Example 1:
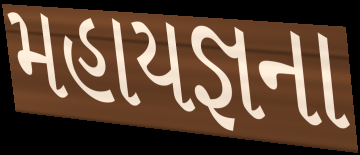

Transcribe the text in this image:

મહાયજ્ઞના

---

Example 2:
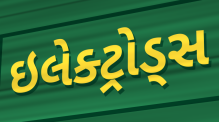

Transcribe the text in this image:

ઇલેક્ટ્રોડ્સ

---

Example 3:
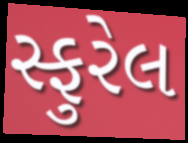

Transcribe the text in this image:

સ્ફુરેલ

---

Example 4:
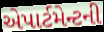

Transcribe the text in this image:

એપાર્ટમેન્ટની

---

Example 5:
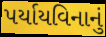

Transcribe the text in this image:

પર્યાયવિનાનું